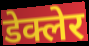
डेक्लेर